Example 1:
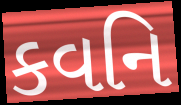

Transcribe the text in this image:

કવનિ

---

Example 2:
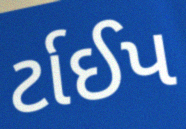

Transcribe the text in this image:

ર્ટાઈપ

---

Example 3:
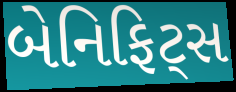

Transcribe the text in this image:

બેનિફિટ્સ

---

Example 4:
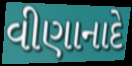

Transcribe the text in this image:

વીણાનાદે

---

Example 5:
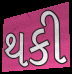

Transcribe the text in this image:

થકી